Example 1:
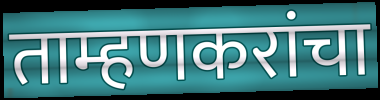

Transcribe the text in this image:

ताम्हणकरांचा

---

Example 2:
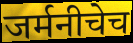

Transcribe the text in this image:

जर्मनीचेच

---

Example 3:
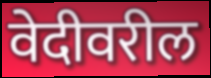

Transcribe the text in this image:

वेदीवरील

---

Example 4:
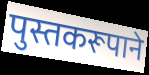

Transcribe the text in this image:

पुस्तकरूपाने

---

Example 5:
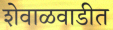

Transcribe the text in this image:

शेवाळवाडीत